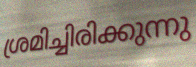
ശ്രമിച്ചിരിക്കുന്നു